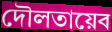
দৌলতায়েব